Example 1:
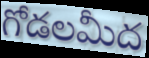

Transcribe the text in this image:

గోడలమీద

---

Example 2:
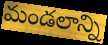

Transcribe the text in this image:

మండలాన్ని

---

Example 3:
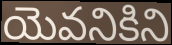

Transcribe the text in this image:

యెవనికిని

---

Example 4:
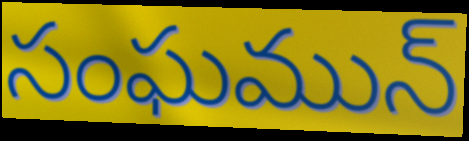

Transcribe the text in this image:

సంఘమున్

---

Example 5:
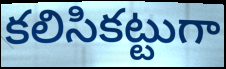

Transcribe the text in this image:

కలిసికట్టుగా